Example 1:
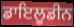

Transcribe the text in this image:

ਡਾਇਲੂਡੀਨ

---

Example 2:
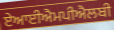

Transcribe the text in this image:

ਏਆਈਐਮਪੀਐਲਬੀ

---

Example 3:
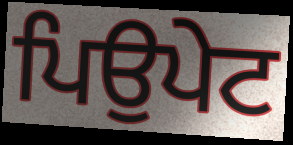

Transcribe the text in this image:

ਪਿਉਪੇਟ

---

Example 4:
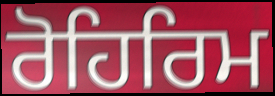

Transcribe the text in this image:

ਰੋਹਿਰਿਮ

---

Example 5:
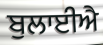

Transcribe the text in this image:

ਬੁਲਾਈਐ